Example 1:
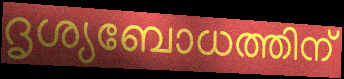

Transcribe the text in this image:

ദൃശ്യബോധത്തിന്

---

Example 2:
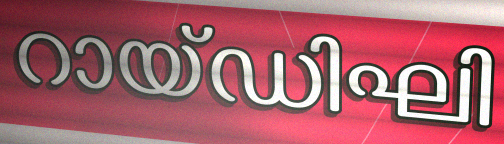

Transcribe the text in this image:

റായ്ഡിഘി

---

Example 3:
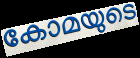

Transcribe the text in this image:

കോമയുടെ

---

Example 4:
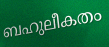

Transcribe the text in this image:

ബഹുലീകതം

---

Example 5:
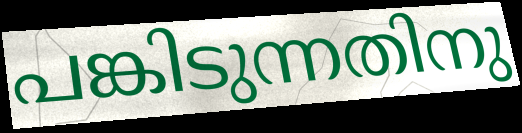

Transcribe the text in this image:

പങ്കിടുന്നതിനു